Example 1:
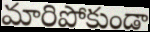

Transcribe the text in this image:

మారిపోకుండా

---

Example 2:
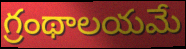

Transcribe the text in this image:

గ్రంథాలయమే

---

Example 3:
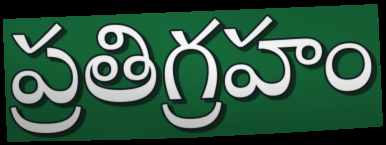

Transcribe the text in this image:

ప్రతిగ్రహం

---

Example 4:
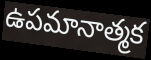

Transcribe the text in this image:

ఉపమానాత్మక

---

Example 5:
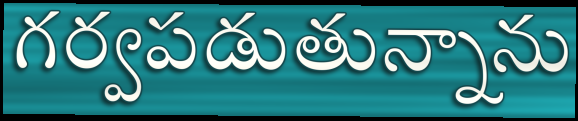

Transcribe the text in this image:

గర్వపడుతున్నాను